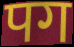
पग